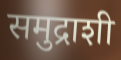
समुद्राशी